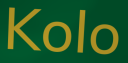
Kolo